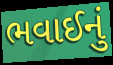
ભવાઈનું